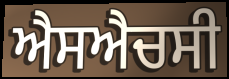
ਐਸਐਚਸੀ